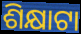
ଶିକ୍ଷାଟା